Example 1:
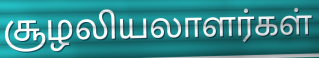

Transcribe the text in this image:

சூழலியலாளர்கள்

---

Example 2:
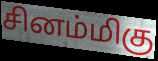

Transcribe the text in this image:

சினம்மிகு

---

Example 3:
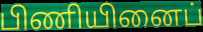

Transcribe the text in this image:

பிணியினைப்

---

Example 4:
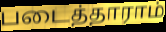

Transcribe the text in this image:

படைத்தாராம்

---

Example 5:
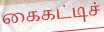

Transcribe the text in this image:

கைகட்டிச்